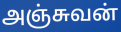
அஞ்சுவன்